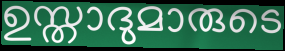
ഉസ്താദുമാരുടെ